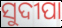
ସୁଦୀପା